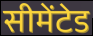
सीमेंटेड